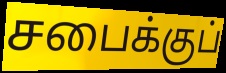
சபைக்குப்